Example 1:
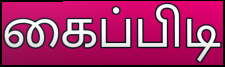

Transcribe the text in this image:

கைப்பிடி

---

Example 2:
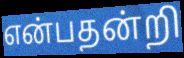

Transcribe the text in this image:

என்பதன்றி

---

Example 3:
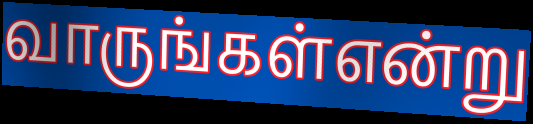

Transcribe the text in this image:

வாருங்கள்என்று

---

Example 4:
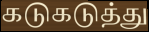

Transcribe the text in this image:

கடுகடுத்து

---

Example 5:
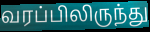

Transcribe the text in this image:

வரப்பிலிருந்து